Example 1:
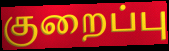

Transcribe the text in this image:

குறைப்பு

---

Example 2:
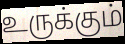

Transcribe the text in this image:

உருக்கும்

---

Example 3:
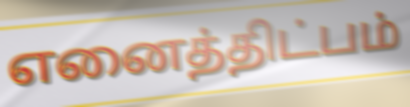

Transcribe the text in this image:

எனைத்திட்பம்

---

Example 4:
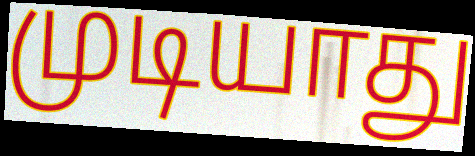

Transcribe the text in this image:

முடியாது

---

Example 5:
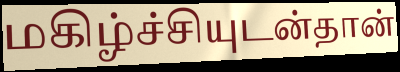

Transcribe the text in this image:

மகிழ்ச்சியுடன்தான்